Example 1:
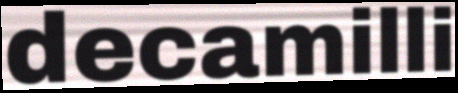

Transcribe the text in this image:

decamilli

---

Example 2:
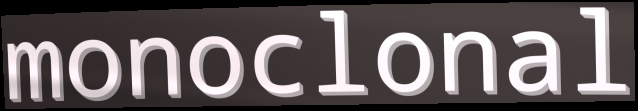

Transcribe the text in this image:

monoclonal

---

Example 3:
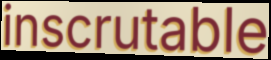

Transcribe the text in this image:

inscrutable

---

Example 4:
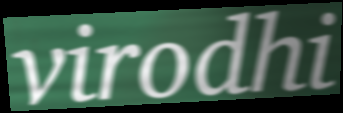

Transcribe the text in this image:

virodhi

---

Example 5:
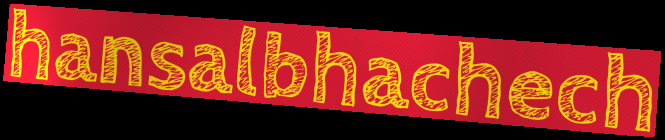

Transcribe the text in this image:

hansalbhachech